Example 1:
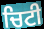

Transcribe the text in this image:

ਚਿਟੀ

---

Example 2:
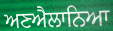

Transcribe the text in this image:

ਅਣਐਲਾਨਿਆ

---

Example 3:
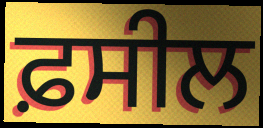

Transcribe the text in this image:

ਫ਼ਸੀਲ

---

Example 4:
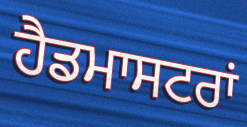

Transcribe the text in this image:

ਹੈਡਮਾਸਟਰਾਂ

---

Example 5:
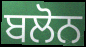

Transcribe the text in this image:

ਬਲੋਨ